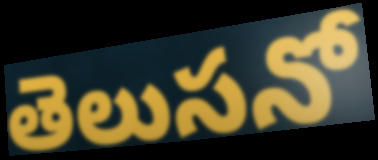
తెలుసనో